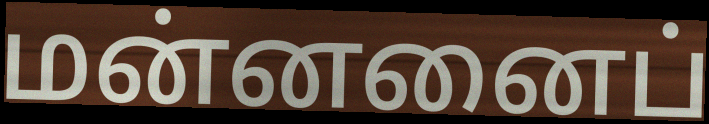
மன்னனைப்